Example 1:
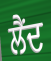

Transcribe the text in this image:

ਲੈਂਦ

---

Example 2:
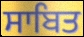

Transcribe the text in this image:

ਸਾਬਿਤ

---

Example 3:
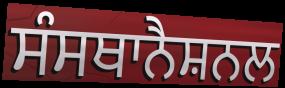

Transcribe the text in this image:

ਸੰਸਥਾਨੈਸ਼ਨਲ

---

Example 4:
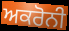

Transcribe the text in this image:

ਅਕਰੋਨੀ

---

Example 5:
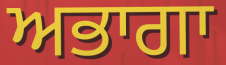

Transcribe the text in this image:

ਅਭਾਗਾ